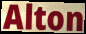
Alton